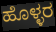
ಹೊಳ್ಳರ